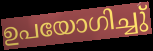
ഉപയോഗിച്ചു്